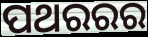
ପଥରରର